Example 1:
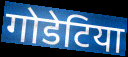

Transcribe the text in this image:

गोडेटिया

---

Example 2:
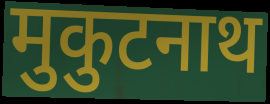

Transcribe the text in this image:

मुकुटनाथ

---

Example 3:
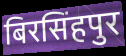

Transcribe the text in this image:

बिरसिंहपुर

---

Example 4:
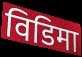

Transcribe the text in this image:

विडिमा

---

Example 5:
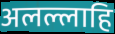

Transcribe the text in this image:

अलल्लाहि